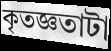
কৃতজ্ঞতাটা